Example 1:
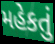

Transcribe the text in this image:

મહેકતું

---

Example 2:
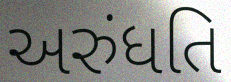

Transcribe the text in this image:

અરુંધતિ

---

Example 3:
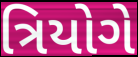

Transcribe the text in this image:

ત્રિયોગે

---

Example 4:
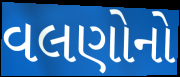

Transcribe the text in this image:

વલણોનો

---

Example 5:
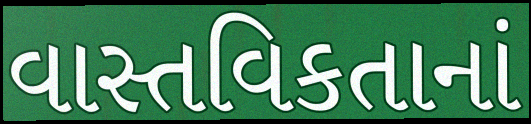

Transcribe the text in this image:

વાસ્તવિકતાનાં